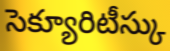
సెక్యూరిటీస్కు